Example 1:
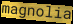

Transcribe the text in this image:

magnolia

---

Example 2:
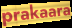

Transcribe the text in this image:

prakaara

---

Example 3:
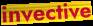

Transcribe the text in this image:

invective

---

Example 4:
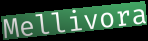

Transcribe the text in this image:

Mellivora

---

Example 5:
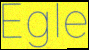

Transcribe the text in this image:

Egle